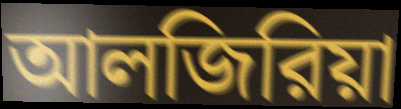
আলজিরিয়া